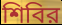
শিবির